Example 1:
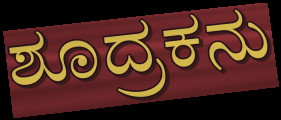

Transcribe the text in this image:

ಶೂದ್ರಕನು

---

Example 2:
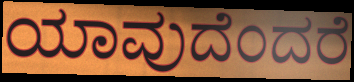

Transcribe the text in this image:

ಯಾವುದೆಂದರೆ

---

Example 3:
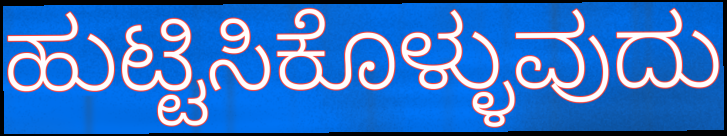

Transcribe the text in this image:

ಹುಟ್ಟಿಸಿಕೊಳ್ಳುವುದು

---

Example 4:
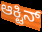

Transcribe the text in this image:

ಆಕ್ಟಿನ್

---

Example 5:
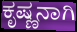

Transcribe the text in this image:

ಕೃಷ್ಣನಾಗಿ